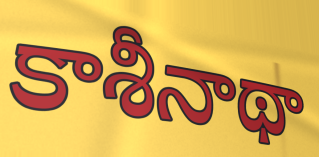
కాశీనాథా